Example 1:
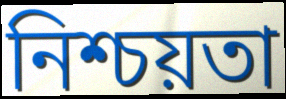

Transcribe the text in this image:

নিশ্চয়তা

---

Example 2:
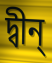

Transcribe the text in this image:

দ্বীন্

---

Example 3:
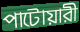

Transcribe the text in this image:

পাটোয়ারী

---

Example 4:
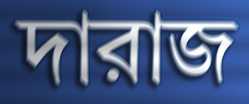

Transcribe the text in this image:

দারাজ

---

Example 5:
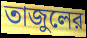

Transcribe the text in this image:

তাজুলের